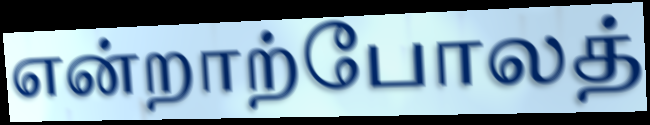
என்றாற்போலத்